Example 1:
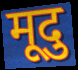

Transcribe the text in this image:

मूदु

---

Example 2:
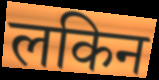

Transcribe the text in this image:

लकिन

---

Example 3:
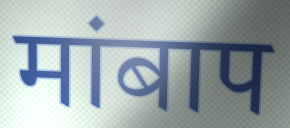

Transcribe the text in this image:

मांबाप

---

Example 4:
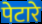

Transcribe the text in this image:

पेटारे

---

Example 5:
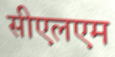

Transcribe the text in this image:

सीएलएम